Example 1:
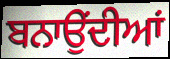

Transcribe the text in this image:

ਬਨਾਉਂਦੀਆਂ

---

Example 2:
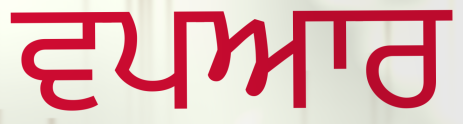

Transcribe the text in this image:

ਵਪਆਰ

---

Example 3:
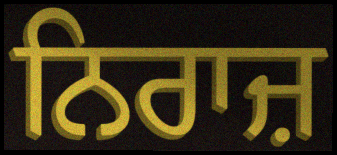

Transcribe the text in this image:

ਨਿਰਾਜ਼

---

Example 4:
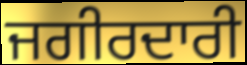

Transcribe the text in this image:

ਜਗੀਰਦਾਰੀ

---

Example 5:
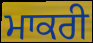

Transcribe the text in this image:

ਮਾਕਰੀ